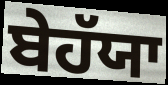
ਬੇਹੱਯਾ